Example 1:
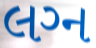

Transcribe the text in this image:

લગ્‍ન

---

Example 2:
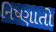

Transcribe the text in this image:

નિષ્ણાતો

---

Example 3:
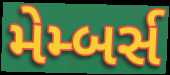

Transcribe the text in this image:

મેમ્બર્સ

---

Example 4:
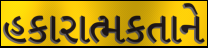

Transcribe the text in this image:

હકારાત્મકતાને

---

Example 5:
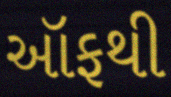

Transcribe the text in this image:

ઑફથી